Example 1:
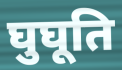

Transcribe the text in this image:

घुघूति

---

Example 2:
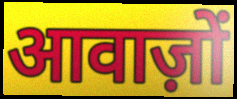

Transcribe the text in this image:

आवाज़ों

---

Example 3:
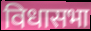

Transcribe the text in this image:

विधासभा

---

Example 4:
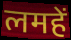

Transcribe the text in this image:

लमहें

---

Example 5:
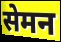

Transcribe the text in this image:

सेमन